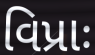
વિપ્રાઃ